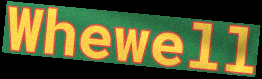
Whewell